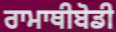
ਰਾਮਾਥੀਬੋਡੀ